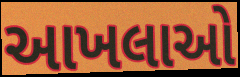
આખલાઓ